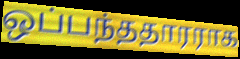
ஒப்பந்ததாரராக